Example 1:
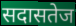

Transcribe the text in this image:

सदासतेज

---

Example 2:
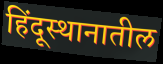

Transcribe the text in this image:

हिंदूस्थानातील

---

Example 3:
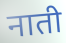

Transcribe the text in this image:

नाती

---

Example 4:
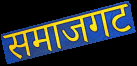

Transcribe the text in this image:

समाजगट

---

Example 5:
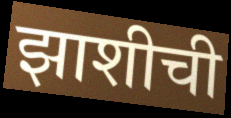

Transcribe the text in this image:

झाशीची